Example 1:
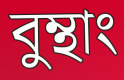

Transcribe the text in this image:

বুম্থাং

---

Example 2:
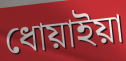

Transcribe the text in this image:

ধোয়াইয়া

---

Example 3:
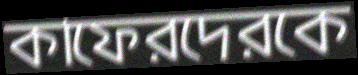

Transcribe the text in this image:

কাফেরদেরকে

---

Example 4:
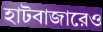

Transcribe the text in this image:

হাটবাজারেও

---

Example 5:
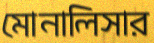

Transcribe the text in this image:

মোনালিসার